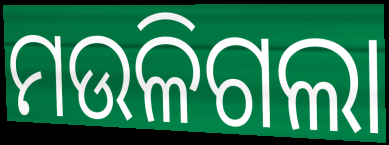
ମଉଳିଗଲା